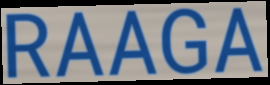
RAAGA